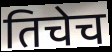
तिचेच